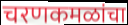
चरणकमळांचा